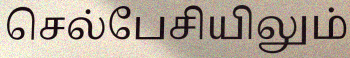
செல்பேசியிலும்